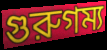
গুরুগম্য